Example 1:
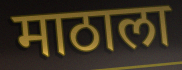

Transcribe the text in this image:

माठाला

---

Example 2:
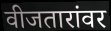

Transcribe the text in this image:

वीजतारांवर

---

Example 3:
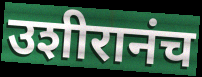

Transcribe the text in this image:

उशीरानंच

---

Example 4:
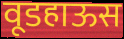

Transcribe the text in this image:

वूडहाऊस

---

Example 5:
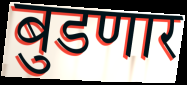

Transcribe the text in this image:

बुडणार